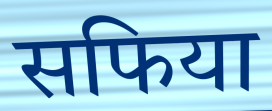
सफिया